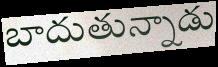
బాదుతున్నాడు